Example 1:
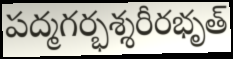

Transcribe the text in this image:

పద్మగర్భశ్శరీరభృత్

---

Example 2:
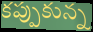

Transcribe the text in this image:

కప్పుకున్న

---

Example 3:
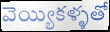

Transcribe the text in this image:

వెయ్యికళ్ళతో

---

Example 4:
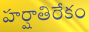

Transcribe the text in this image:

హర్షాతిరేకం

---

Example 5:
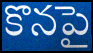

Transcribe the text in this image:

కొనపై